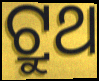
ଟ୍ରୁଥ